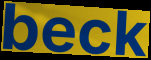
beck